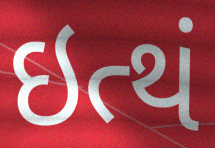
ઇત્થં